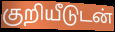
குறியீடுடன்